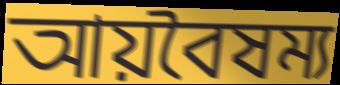
আয়বৈষম্য